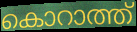
കൊറാത്ത്